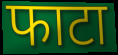
फाटा